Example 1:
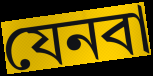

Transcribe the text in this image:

যেনবা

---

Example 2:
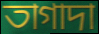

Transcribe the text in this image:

তাগাদা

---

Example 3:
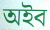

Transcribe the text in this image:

অইব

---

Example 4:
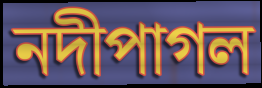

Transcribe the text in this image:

নদীপাগল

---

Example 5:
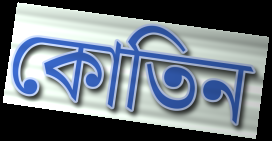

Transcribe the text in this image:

কোতিন